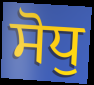
ਸੋਧੁ